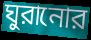
ঘুরানোর